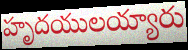
హృదయులయ్యారు